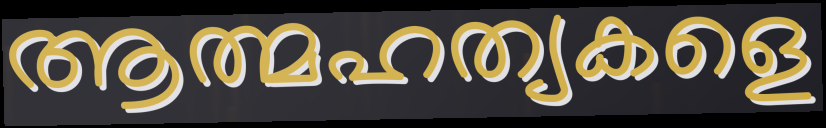
ആത്മഹത്യകളെ